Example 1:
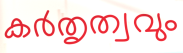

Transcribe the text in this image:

കർതൃത്വവും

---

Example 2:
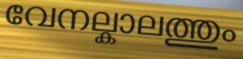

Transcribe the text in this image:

വേനല്കാലത്തും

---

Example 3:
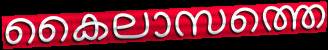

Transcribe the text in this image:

കൈലാസത്തെ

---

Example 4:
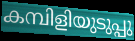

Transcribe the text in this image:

കമ്പിളിയുടുപ്പു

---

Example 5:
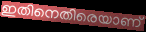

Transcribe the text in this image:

ഇതിനെതിരെയാണ്